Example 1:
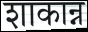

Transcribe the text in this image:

शाकान्न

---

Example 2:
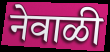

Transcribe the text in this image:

नेवाळी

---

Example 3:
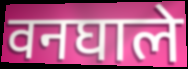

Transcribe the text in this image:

वनघाले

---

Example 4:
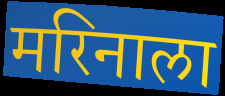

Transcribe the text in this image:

मरिनाला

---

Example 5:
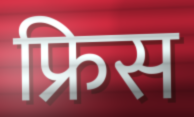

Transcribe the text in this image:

फ्रिस